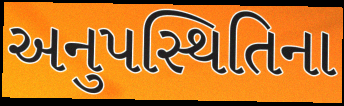
અનુપસ્થિતિના